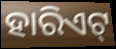
ହାରିଏଟ୍